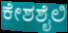
ಕೇಶಶೈಲಿ